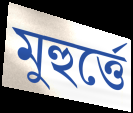
মুহুর্ত্তে